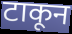
टाकून